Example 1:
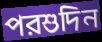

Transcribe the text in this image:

পরশুদিন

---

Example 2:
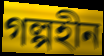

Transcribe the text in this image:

গল্পহীন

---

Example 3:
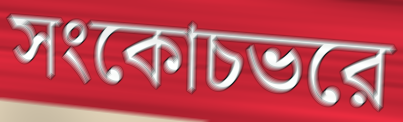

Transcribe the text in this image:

সংকোচভরে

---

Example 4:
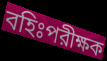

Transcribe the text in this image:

বহিঃপরীক্ষক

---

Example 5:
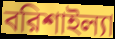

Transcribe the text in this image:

বরিশাইল্যা